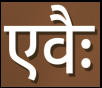
एवैः